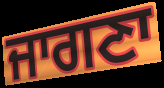
ਜਾਗਣਾ